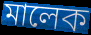
মালেক